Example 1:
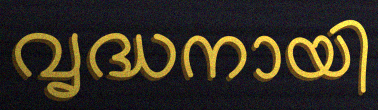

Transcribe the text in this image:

വൃദ്ധനായി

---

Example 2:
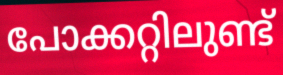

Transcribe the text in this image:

പോക്കറ്റിലുണ്ട്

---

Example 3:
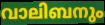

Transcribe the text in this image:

വാലിബനും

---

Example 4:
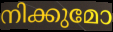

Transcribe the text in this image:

നിക്കുമോ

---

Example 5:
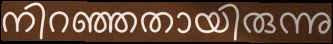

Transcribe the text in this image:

നിറഞ്ഞതായിരുന്നു